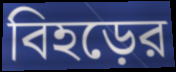
বিহড়ের